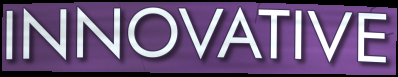
INNOVATIVE